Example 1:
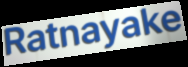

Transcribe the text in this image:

Ratnayake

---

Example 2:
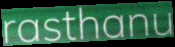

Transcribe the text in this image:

rasthanu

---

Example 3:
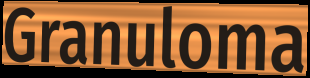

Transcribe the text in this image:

Granuloma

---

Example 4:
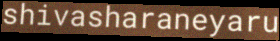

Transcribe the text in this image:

shivasharaneyaru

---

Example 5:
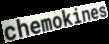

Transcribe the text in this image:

chemokines